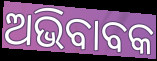
ଅଭିବାବକ